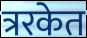
त्ररकेत